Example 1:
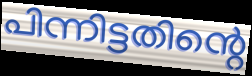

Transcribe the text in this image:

പിന്നിട്ടതിന്റെ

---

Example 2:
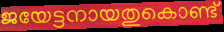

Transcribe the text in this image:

ജയേട്ടനായതുകൊണ്ട്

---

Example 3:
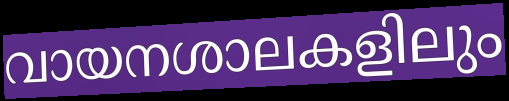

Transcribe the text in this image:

വായനശാലകളിലും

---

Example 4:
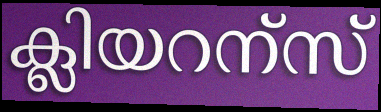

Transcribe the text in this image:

ക്ലിയറന്സ്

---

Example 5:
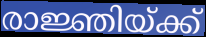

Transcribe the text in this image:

രാജ്ഞിയ്ക്ക്